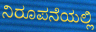
ನಿರೂಪನೆಯಲ್ಲಿ